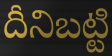
దీనిబట్టి